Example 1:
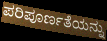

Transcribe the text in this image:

ಪರಿಪೂರ್ಣತೆಯನ್ನು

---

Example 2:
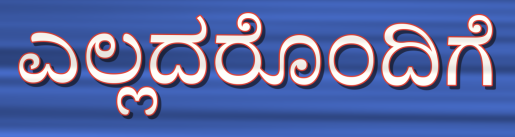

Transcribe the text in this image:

ಎಲ್ಲದರೊಂದಿಗೆ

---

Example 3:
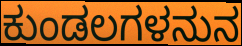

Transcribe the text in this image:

ಕುಂಡಲಗಳನುನ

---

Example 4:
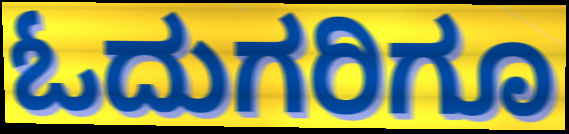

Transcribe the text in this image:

ಓದುಗರಿಗೂ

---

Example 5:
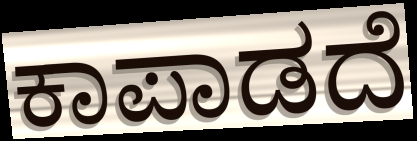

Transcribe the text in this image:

ಕಾಪಾಡದೆ